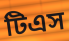
টিএস